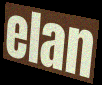
elan